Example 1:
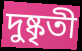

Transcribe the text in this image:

দুষ্কৃতী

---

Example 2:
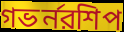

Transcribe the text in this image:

গভর্নরশিপ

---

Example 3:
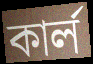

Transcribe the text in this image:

কার্ল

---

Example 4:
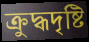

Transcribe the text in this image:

ক্রুদ্ধদৃষ্টি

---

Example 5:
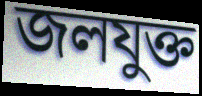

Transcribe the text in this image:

জলযুক্ত